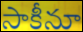
సాకీనూ